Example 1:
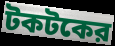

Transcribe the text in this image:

টকটকের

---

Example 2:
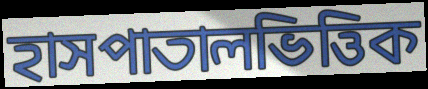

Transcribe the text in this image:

হাসপাতালভিত্তিক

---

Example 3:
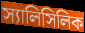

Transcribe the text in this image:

স্যালিসিলিক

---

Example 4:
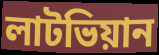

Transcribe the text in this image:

লাটভিয়ান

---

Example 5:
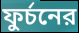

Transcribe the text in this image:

ফুর্চনের